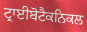
ਟ੍ਰਾਈਬੋਟੈਕਨਿਕਲ